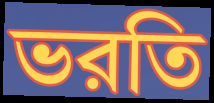
ভরতি